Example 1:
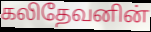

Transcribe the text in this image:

கலிதேவனின்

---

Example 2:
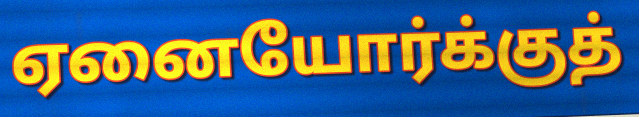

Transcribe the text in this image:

ஏனையோர்க்குத்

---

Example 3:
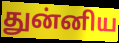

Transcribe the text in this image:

துன்னிய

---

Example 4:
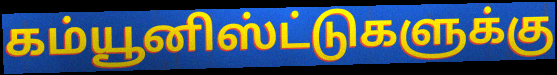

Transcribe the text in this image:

கம்யூனிஸ்ட்டுகளுக்கு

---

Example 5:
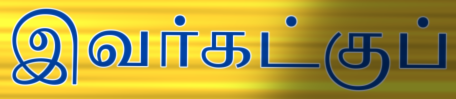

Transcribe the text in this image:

இவர்கட்குப்